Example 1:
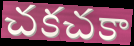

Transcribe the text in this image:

చకచకా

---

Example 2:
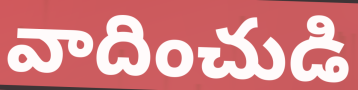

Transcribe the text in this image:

వాదించుడి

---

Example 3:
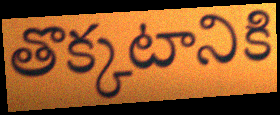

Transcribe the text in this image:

తొక్కటానికి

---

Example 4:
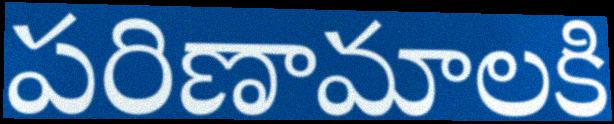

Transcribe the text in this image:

పరిణామాలకి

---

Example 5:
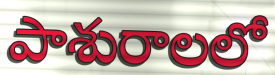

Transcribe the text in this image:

పాశురాలలో